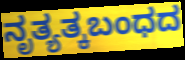
ನೃತ್ಯತ್ಕಬಂಧದ